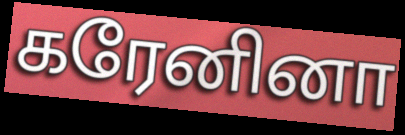
கரேனினா